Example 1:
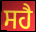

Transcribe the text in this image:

ਸਹੈ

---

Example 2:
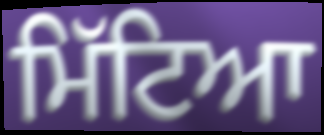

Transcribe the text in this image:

ਮਿੱਟਿਆ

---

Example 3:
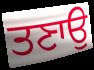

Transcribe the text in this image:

ਤਣਾਉ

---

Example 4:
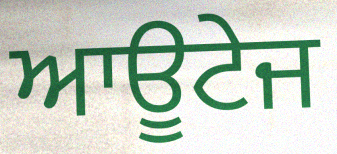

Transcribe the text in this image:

ਆਊਟੇਜ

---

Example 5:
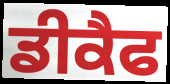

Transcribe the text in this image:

ਡੀਕੈਫ